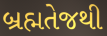
બ્રહ્મતેજથી